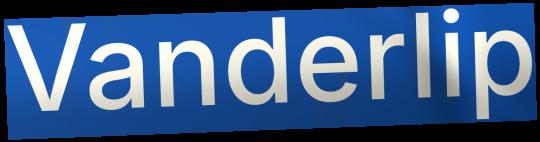
Vanderlip